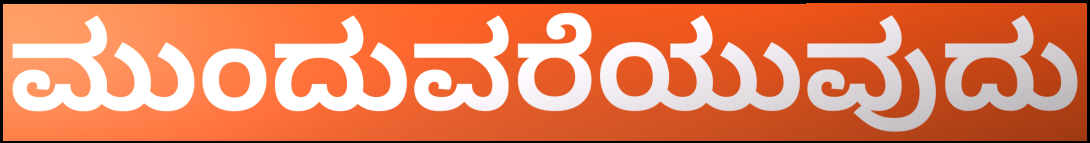
ಮುಂದುವರೆಯುವುದು